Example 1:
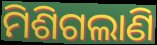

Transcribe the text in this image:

ମିଶିଗଲାଣି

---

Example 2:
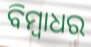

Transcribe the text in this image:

ବିମ୍ବାଧର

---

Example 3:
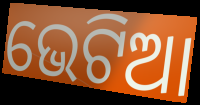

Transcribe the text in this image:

ଭେଟିଆ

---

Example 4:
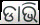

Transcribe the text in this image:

ଡାଭି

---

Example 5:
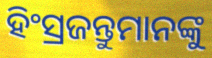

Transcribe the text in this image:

ହିଂସ୍ରଜନ୍ତୁମାନଙ୍କୁ